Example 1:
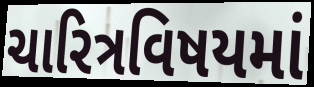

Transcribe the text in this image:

ચારિત્રવિષયમાં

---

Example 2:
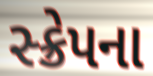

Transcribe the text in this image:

સ્ક્રેપના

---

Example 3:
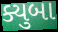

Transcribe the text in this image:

ક્યુબા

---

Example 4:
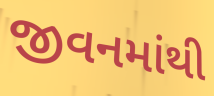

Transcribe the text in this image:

જીવનમાંથી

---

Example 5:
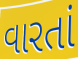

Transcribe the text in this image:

વારતાં